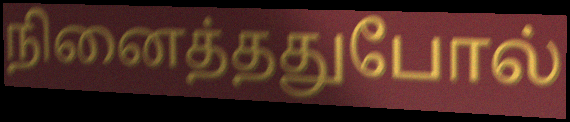
நினைத்ததுபோல்